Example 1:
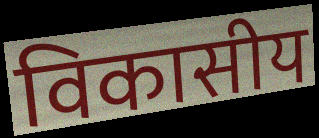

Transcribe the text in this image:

विकासीय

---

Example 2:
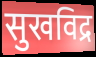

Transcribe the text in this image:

सुखविद्र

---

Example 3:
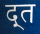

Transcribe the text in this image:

द्त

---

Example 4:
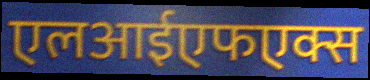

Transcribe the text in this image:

एलआईएफएक्स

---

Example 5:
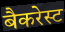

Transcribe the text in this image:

बैकरेस्ट